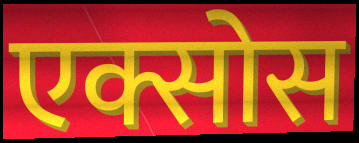
एक्सोस